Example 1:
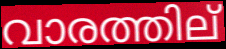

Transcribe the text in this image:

വാരത്തില്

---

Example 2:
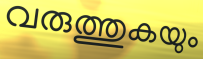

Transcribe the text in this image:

വരുത്തുകയും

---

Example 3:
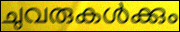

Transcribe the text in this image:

ചുവരുകൾക്കും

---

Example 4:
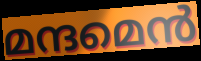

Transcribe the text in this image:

മന്ദമെൻ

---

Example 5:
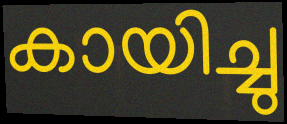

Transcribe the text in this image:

കായിച്ചു